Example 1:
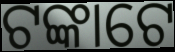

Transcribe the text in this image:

ଟଙ୍କାଟେ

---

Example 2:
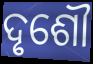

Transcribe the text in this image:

ଦୃଶୌ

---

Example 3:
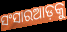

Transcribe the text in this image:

ସଂସାରଆଡ଼କୁ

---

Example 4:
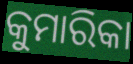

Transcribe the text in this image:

କୁମାରିକା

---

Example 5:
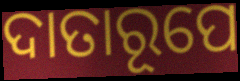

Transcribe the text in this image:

ଦାତାରୂପେ